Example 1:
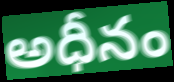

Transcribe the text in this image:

అధీనం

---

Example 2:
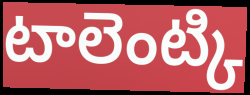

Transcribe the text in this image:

టాలెంట్కి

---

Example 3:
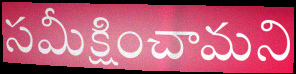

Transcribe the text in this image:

సమీక్షించామని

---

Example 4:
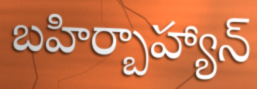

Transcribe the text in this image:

బహిర్బాహ్యాన్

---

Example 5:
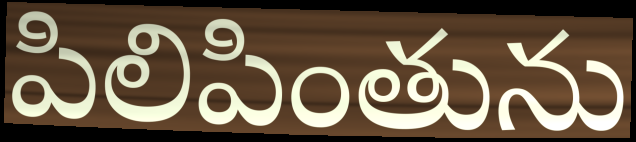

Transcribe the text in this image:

పిలిపింతును